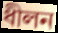
ধীলন